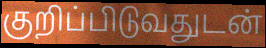
குறிப்பிடுவதுடன்